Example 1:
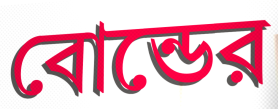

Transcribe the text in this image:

বোন্ডের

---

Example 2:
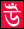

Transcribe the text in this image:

উঁ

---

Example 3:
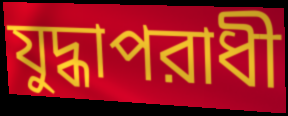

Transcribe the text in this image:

যুদ্ধাপরাধী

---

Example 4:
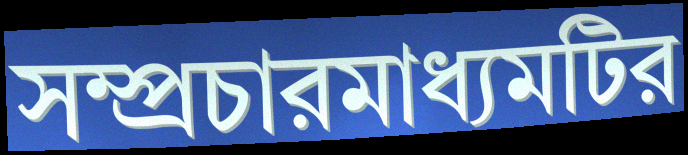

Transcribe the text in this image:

সম্প্রচারমাধ্যমটির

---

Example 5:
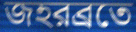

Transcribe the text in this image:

জহরব্রতে